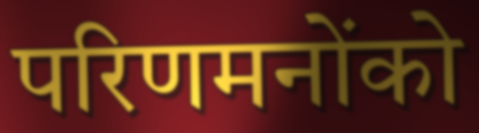
परिणमनोंको